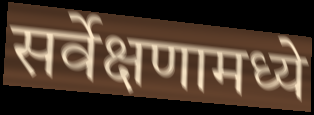
सर्वेक्षणामध्ये